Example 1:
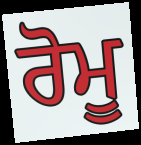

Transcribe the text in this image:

ਰੋਮੂ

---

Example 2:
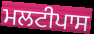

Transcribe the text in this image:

ਮਲਟੀਪਾਸ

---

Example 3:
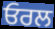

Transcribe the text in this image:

ਓਰਲ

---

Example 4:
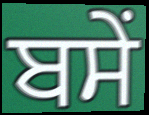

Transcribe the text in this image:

ਬਸੇਂ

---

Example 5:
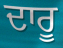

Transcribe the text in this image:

ਦਾਰੂ